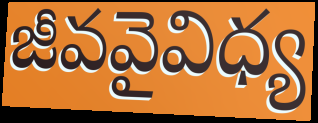
జీవవైవిధ్య